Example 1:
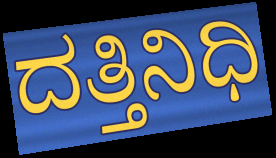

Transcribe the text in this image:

ದತ್ತಿನಿಧಿ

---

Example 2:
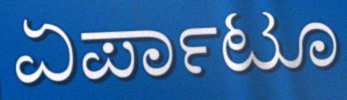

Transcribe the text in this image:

ಏರ್ಪಾಟೂ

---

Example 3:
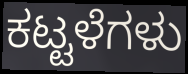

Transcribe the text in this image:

ಕಟ್ಟಳೆಗಳು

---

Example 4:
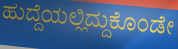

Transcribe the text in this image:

ಹುದ್ದೆಯಲ್ಲಿದ್ದುಕೊಂಡೇ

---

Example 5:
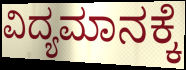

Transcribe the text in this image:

ವಿದ್ಯಮಾನಕ್ಕೆ